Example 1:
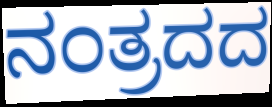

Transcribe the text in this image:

ನಂತ್ರದದ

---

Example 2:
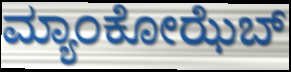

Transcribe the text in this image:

ಮ್ಯಾಂಕೋಝೆಬ್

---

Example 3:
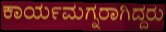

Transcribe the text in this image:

ಕಾರ್ಯಮಗ್ನರಾಗಿದ್ದರು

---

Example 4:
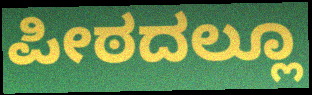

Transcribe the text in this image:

ಪೀಠದಲ್ಲೂ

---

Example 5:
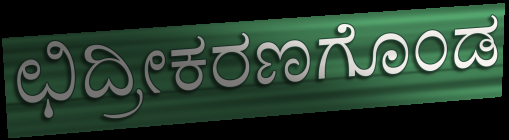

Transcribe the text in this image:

ಛಿದ್ರೀಕರಣಗೊಂಡ